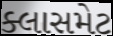
ક્લાસમેટ